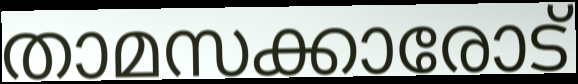
താമസക്കാരോട്